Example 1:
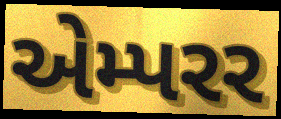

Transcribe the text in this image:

એમ્પરર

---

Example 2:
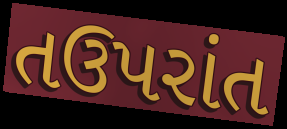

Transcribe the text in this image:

તઉપરાંત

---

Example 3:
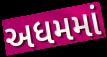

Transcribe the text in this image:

અધમમાં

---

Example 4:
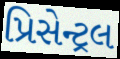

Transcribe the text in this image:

પ્રિસેન્ટ્રલ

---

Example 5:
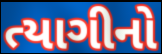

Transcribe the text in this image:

ત્યાગીનો